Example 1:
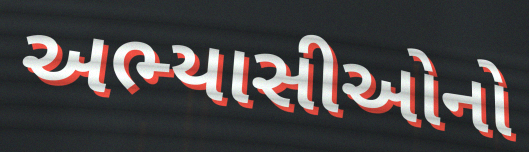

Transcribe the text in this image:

અભ્યાસીઓનો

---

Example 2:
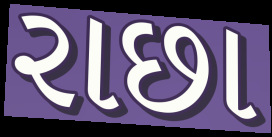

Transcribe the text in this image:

રાછા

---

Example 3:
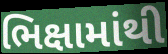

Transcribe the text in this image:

ભિક્ષામાંથી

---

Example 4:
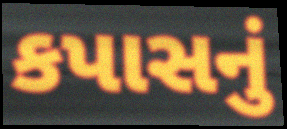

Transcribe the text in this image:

કપાસનું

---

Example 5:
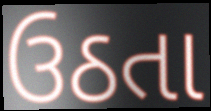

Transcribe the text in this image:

ઉઠતા